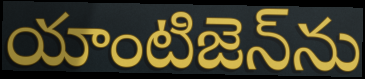
యాంటిజెన్‌ను